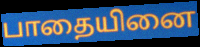
பாதையினை